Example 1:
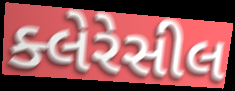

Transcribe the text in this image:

ક્લેરેસીલ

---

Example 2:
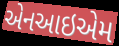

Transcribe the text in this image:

એનઆઇએમ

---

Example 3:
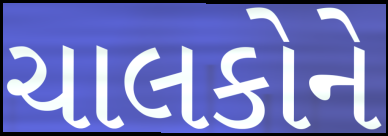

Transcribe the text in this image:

ચાલકોને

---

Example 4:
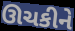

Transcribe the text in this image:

ઊચકીને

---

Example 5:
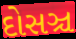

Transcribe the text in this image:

દોસઞ્ચ